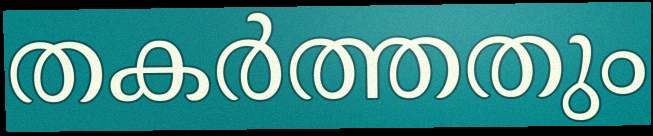
തകർത്തതും